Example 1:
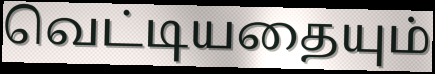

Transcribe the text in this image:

வெட்டியதையும்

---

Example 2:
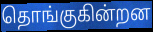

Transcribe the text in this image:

தொங்குகின்றன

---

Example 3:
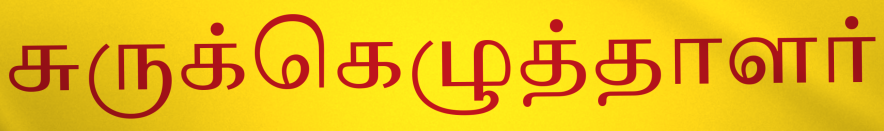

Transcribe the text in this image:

சுருக்கெழுத்தாளர்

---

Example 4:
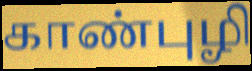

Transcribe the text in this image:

காண்புழி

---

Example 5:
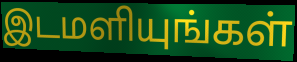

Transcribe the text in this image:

இடமளியுங்கள்